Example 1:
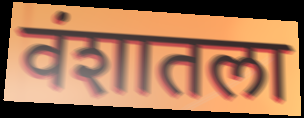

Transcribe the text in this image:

वंशातला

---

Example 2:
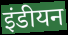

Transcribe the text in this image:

इंडीयन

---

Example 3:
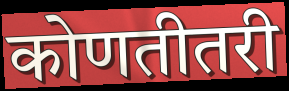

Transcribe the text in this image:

कोणतीतरी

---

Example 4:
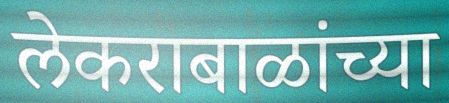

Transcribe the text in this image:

लेकराबाळांच्या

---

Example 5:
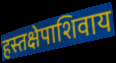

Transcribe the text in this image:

हस्तक्षेपाशिवाय